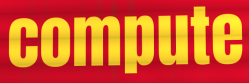
compute